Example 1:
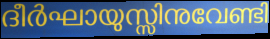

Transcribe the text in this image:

ദീർഘായുസ്സിനുവേണ്ടി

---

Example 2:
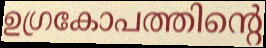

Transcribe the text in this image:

ഉഗ്രകോപത്തിന്റെ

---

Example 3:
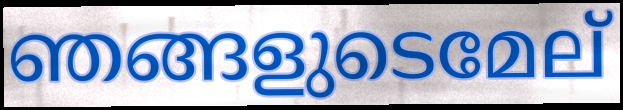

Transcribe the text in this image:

ഞങ്ങളുടെമേല്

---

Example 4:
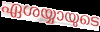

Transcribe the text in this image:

ഏശയ്യായുടെ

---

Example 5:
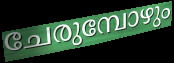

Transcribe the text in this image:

ചേരുമ്പോഴും